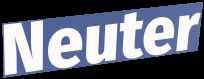
Neuter